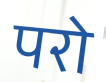
परो